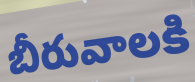
బీరువాలకి